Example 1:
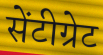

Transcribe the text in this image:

सेंटीग्रेट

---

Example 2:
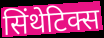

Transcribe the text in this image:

सिंथेटिक्स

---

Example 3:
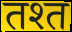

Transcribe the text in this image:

तश्त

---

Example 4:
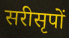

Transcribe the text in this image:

सरीसृपों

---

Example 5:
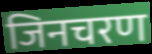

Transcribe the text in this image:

जिनचरण